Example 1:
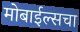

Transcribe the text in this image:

मोबाईल्सचा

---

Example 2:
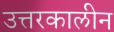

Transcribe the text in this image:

उत्तरकालीन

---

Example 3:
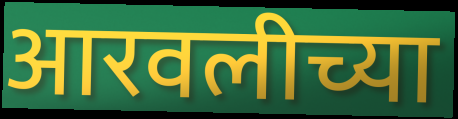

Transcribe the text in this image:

आरवलीच्या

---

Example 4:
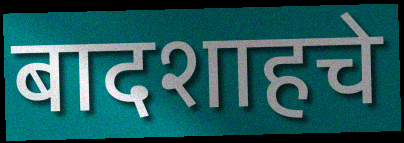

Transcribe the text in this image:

बादशाहचे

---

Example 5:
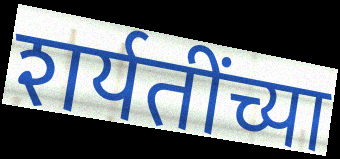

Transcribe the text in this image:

शर्यतींच्या